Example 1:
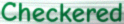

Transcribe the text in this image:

Checkered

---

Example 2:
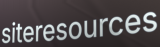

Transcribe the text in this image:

siteresources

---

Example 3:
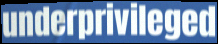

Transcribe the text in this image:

underprivileged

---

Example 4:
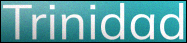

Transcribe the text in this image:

Trinidad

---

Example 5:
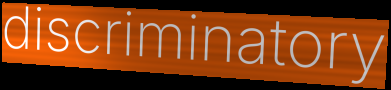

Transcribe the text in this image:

discriminatory